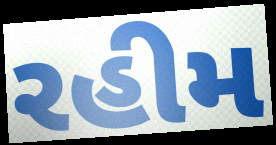
રહીમ